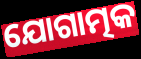
ଯୋଗାତ୍ମକ